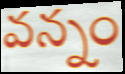
వన్నం